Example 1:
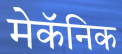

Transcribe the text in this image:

मेकॅनिक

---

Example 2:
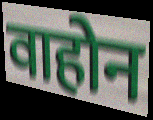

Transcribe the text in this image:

वाहोन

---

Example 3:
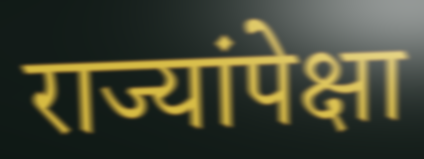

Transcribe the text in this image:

राज्यांपेक्षा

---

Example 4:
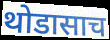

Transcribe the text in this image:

थोडासाच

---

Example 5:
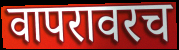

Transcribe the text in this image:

वापरावरच